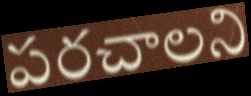
పరచాలని